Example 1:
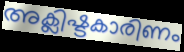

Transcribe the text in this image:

അക്ലിഷ്ടകാരിണം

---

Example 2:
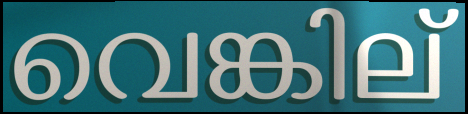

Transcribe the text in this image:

വെങ്കില്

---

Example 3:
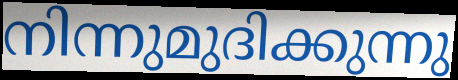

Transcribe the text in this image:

നിന്നുമുദിക്കുന്നു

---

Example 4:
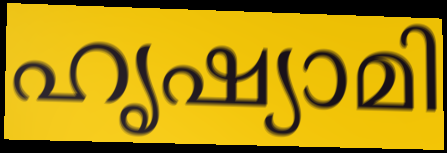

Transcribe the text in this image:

ഹൃഷ്യാമി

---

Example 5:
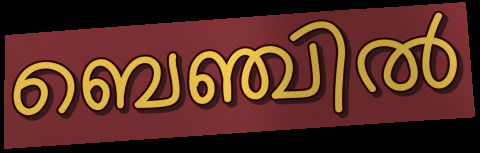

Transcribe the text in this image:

ബെഞ്ചിൽ